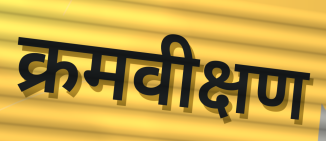
क्रमवीक्षण